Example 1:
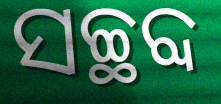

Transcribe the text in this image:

ସଚ୍ଛବ୍ଦ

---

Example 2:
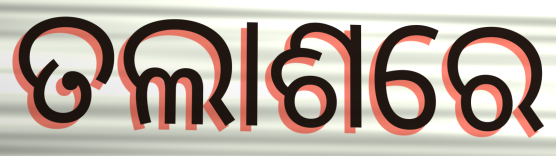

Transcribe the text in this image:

ତଲାଶରେ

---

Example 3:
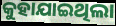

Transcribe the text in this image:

କୁହାଯାଇଥିଲା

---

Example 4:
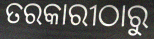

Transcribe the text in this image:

ତରକାରୀଠାରୁ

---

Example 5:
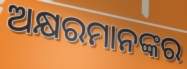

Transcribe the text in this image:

ଅକ୍ଷରମାନଙ୍କର